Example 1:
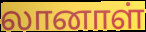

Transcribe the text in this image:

லானாள்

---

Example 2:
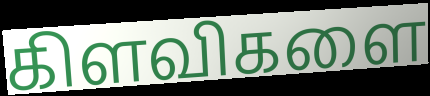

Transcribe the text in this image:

கிளவிகளை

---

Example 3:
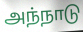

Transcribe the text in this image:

அந்நாடு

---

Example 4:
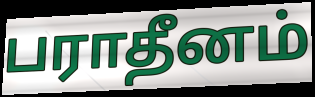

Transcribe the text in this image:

பராதீனம்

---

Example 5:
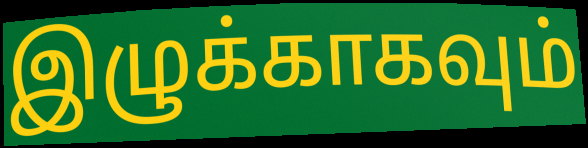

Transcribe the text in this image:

இழுக்காகவும்